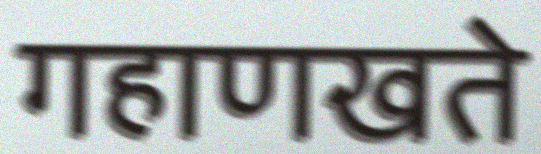
गहाणखते